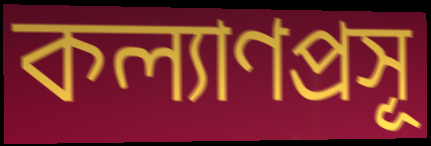
কল্যাণপ্রসূ